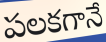
పలకగానే